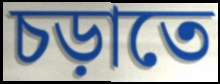
চড়াতে